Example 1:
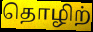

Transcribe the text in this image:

தொழிற்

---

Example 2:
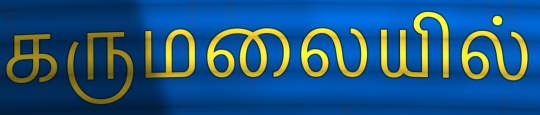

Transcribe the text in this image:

கருமலையில்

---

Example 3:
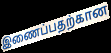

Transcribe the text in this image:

இணைப்பதற்கான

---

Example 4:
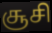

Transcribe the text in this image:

சூசி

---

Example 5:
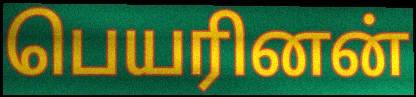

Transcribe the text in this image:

பெயரினன்